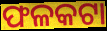
ଫଳକଟା